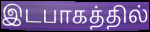
இடபாகத்தில்